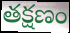
తక్షణం